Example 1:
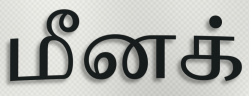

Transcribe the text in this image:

மீனக்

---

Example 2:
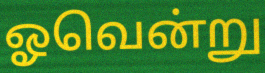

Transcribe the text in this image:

ஓவென்று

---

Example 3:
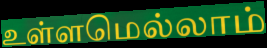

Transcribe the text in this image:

உள்ளமெல்லாம்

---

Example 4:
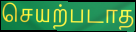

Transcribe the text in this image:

செயற்படாத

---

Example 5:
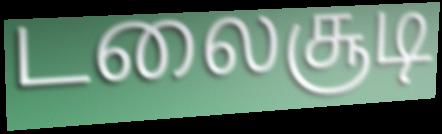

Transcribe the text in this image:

டலைசூடி